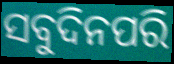
ସବୁଦିନପରି